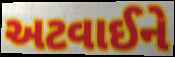
અટવાઈને